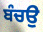
ਬੰਚਉ